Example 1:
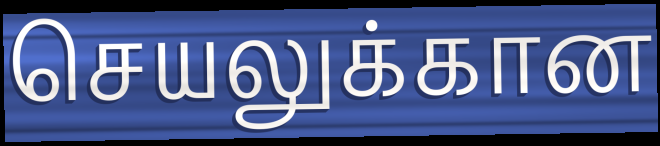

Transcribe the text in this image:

செயலுக்கான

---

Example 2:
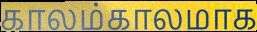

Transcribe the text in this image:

காலம்காலமாக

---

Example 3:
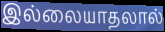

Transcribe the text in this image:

இல்லையாதலால்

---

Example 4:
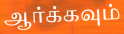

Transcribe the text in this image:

ஆர்க்கவும்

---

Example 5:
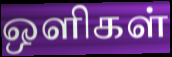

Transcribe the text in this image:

ஒளிகள்